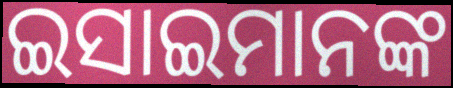
ଇସାଇମାନଙ୍କ